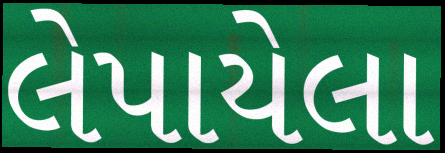
લેપાયેલા